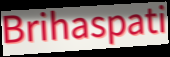
Brihaspati